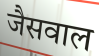
जैसवाल